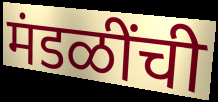
मंडळींची